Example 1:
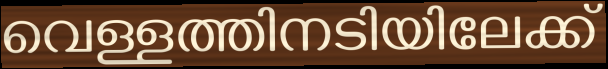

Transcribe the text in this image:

വെള്ളത്തിനടിയിലേക്ക്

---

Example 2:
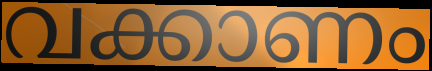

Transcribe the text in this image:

വക്കാണം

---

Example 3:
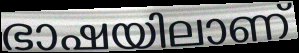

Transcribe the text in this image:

ഭാഷയിലാണ്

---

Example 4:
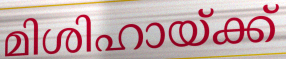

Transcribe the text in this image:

മിശിഹായ്ക്ക്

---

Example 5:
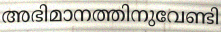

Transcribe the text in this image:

അഭിമാനത്തിനുവേണ്ടി